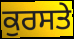
ਕੁਰਸਤੇ